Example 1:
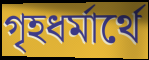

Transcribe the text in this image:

গৃহধর্মার্থে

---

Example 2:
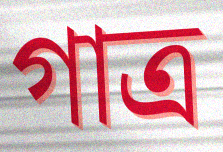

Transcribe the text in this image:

গাত্র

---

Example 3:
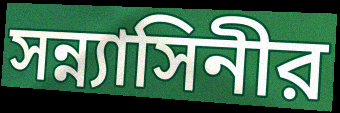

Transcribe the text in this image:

সন্ন্যাসিনীর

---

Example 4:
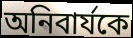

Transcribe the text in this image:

অনিবার্যকে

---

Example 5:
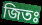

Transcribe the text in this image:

জিতঃ